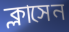
ক্লাসেন